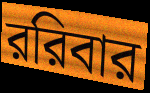
ররিবার